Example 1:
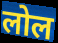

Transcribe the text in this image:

लोल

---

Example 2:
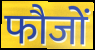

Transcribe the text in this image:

फौजों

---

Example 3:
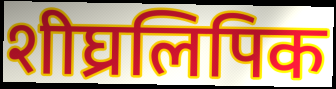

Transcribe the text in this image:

शीघ्रलिपिक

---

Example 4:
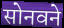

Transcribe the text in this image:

सोनवने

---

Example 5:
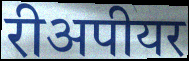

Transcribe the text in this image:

रीअपीयर